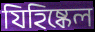
যিহিষ্কেল